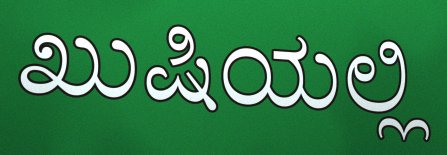
ಖುಷಿಯಲ್ಲಿ